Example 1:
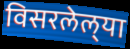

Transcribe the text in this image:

विसरलेल्या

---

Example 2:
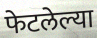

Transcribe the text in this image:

फेटलेल्या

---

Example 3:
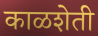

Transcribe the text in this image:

काळशेती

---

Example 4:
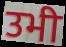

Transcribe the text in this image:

उभी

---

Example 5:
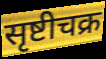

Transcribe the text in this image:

सृष्टीचक्र